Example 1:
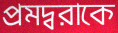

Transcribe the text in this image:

প্রমদ্বরাকে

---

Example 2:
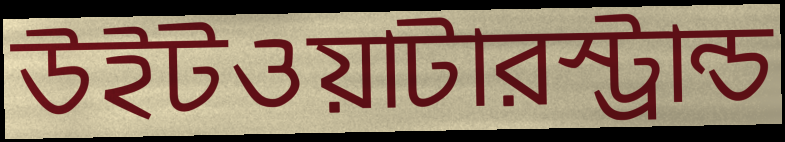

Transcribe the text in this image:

উইটওয়াটারস্ট্রান্ড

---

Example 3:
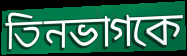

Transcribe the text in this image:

তিনভাগকে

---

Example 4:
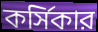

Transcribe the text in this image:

কর্সিকার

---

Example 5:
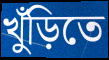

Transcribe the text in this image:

খুঁড়িতে